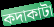
কদাকাটা